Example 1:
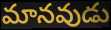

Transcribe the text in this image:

మానవుడు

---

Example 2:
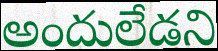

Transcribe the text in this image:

అందులేడని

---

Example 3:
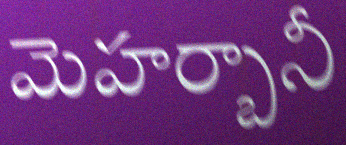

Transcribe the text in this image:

మెహర్బానీ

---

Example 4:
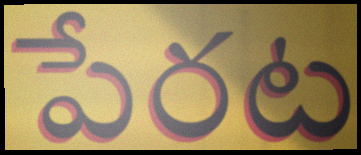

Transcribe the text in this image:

పేరట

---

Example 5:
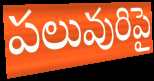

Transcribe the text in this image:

పలువురిపై